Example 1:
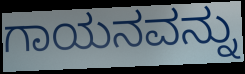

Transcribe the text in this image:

ಗಾಯನವನ್ನು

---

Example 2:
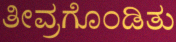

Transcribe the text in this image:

ತೀವ್ರಗೊಂಡಿತು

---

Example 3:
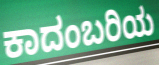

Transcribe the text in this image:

ಕಾದಂಬರಿಯ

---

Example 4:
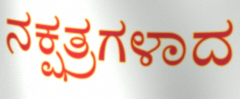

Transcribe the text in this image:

ನಕ್ಷತ್ರಗಳಾದ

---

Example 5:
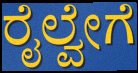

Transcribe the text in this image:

ರೈಲ್ವೇಗೆ